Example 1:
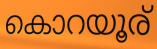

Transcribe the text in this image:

കൊറയൂര്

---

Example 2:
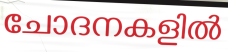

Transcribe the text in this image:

ചോദനകളിൽ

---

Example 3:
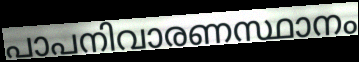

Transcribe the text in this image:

പാപനിവാരണസ്ഥാനം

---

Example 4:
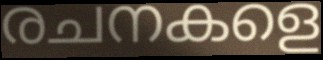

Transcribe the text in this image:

രചനകളെ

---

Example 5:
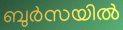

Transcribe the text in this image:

ബുർസയിൽ